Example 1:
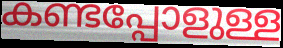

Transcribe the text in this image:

കണ്ടപ്പോളുള്ള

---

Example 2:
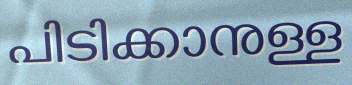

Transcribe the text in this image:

പിടിക്കാനുള്ള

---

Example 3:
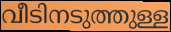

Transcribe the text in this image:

വീടിനടുത്തുള്ള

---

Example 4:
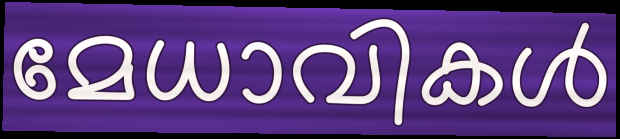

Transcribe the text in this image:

മേധാവികൾ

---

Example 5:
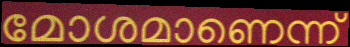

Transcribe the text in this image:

മോശമാണെന്ന്